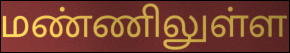
மண்ணிலுள்ள